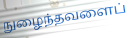
நுழைந்தவளைப்